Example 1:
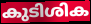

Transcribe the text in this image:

കുടിശിക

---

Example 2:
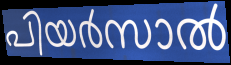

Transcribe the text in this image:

പിയർസാൽ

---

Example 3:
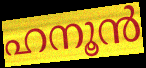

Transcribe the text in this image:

ഹനൂൻ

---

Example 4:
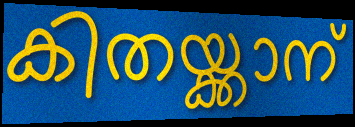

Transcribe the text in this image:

കിതയ്ക്കാന്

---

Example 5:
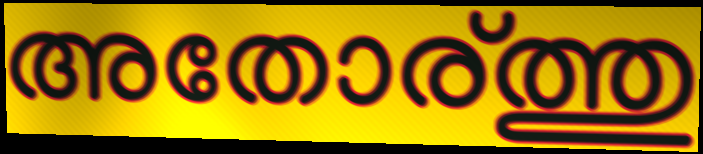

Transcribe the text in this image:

അതോര്ത്തു